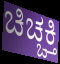
ಚಿಚ್ಚಕ್ತಿ